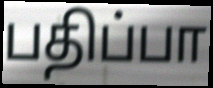
பதிப்பா